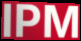
IPM